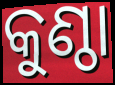
କୁଣ୍ଠା